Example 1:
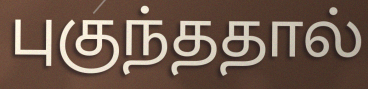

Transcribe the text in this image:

புகுந்ததால்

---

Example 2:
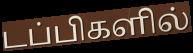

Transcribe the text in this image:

டப்பிகளில்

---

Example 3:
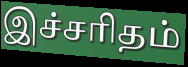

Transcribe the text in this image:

இச்சரிதம்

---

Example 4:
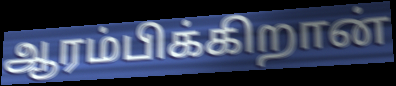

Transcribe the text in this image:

ஆரம்பிக்கிறான்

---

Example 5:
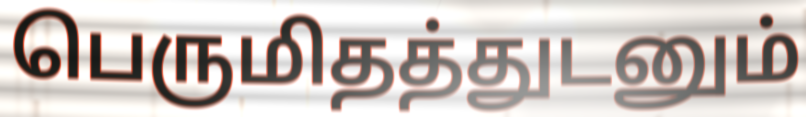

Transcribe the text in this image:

பெருமிதத்துடனும்